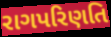
રાગપરિણતિ